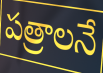
పత్రాలనే